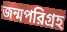
জন্মপরিগ্রহ